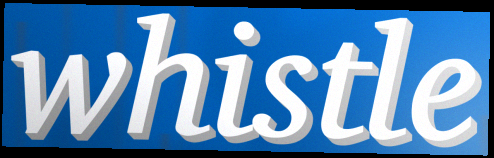
whistle